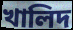
খালিদ